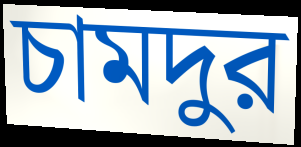
চামদুর